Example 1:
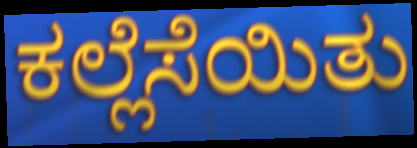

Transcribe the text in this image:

ಕಲ್ಲೆಸೆಯಿತು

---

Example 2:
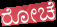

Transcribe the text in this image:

ರೋಚೆ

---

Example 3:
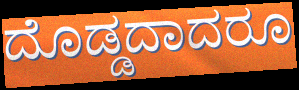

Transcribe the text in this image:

ದೊಡ್ಡದಾದರೂ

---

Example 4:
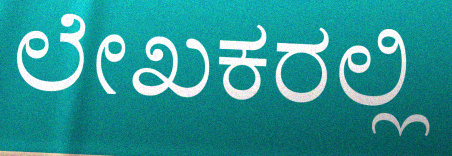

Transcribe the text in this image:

ಲೇಖಕರಲ್ಲಿ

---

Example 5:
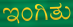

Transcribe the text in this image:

ಇಂಗಿತು